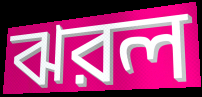
ঝরল